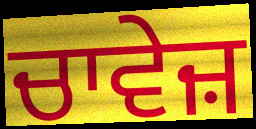
ਚਾਵੇਜ਼